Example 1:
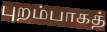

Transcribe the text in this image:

புறம்பாகத்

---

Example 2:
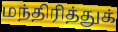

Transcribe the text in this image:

மந்திரித்துக்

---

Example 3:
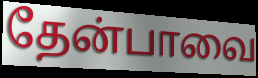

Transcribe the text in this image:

தேன்பாவை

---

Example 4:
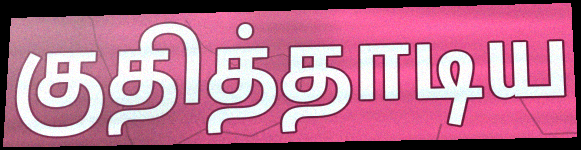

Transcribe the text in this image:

குதித்தாடிய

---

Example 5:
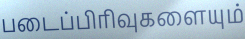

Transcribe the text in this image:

படைப்பிரிவுகளையும்